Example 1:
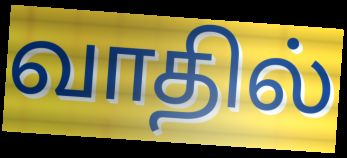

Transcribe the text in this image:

வாதில்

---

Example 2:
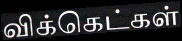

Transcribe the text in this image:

விக்கெட்கள்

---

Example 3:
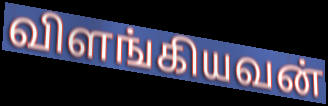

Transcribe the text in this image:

விளங்கியவன்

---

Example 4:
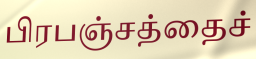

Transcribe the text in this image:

பிரபஞ்சத்தைச்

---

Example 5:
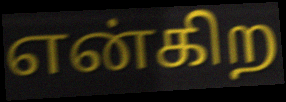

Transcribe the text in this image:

என்கிற